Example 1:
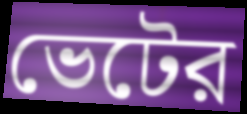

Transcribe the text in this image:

ভেটের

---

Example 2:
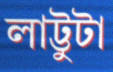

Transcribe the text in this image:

লাট্টুটা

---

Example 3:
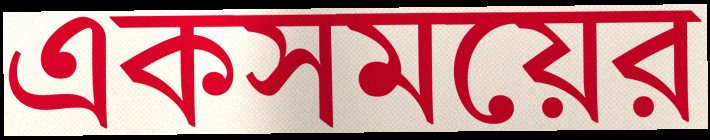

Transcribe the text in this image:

একসময়ের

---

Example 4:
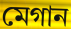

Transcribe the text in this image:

মেগান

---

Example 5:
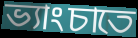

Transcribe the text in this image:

ভ্যাংচাতে